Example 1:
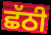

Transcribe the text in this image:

ਛੱਠੀ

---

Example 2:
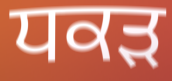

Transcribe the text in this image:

ਧਕੜ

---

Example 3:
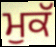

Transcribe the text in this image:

ਮੁਕੱ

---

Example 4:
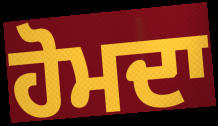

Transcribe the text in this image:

ਹੋਮਦਾ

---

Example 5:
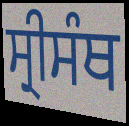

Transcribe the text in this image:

ਸ੍ਰੀਸੰਥ